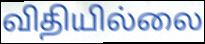
விதியில்லை